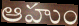
ఆహుం